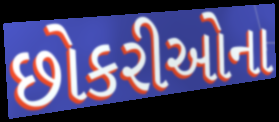
છોકરીઓના